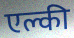
एल्की